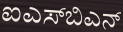
ಐಎಸ್‌ಬಿಎನ್